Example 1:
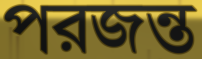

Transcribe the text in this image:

পরজন্ত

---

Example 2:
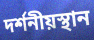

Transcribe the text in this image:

দর্শনীয়স্থান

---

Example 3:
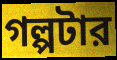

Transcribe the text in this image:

গল্পটার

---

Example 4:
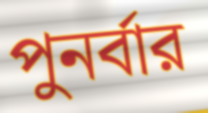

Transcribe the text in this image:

পুনর্বার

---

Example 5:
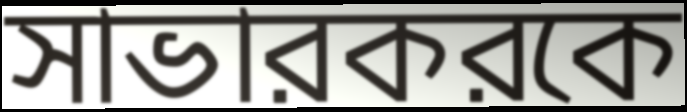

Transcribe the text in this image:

সাভারকরকে